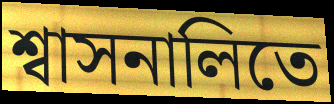
শ্বাসনালিতে